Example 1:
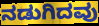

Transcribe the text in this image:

ನಡುಗಿದವು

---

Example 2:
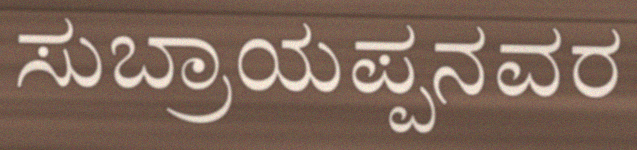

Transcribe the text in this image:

ಸುಬ್ರಾಯಪ್ಪನವರ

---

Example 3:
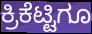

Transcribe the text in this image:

ಕ್ರಿಕೆಟ್ಟಿಗೂ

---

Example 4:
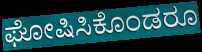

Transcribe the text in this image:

ಘೋಷಿಸಿಕೊಂಡರೂ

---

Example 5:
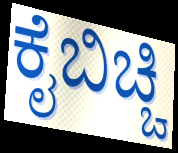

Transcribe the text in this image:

ಕೈಬಿಚ್ಚಿ